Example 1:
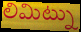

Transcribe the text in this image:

లిమిట్ను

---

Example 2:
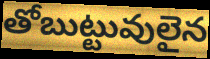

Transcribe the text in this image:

తోబుట్టువులైన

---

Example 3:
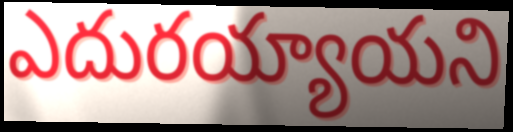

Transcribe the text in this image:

ఎదురయ్యాయని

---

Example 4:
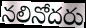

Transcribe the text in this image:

నలినోదరు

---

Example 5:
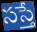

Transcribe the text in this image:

సస్తే